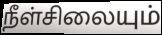
நீள்சிலையும்